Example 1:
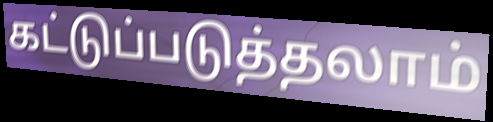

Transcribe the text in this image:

கட்டுப்படுத்தலாம்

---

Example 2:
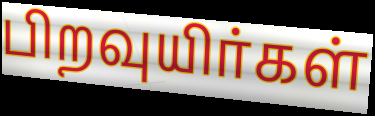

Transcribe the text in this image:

பிறவுயிர்கள்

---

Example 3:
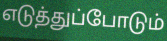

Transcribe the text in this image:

எடுத்துப்போடும்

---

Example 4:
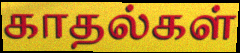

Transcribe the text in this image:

காதல்கள்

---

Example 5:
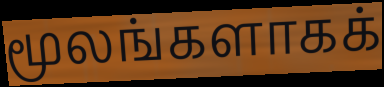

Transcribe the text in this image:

மூலங்களாகக்